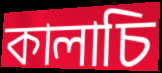
কালাচি